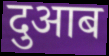
दुआब